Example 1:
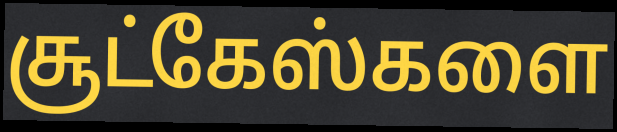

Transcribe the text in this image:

சூட்கேஸ்களை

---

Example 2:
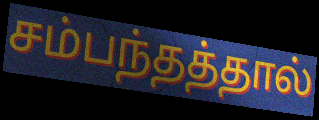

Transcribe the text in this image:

சம்பந்தத்தால்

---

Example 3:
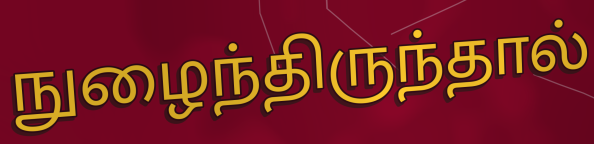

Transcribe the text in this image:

நுழைந்திருந்தால்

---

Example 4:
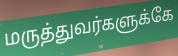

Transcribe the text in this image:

மருத்துவர்களுக்கே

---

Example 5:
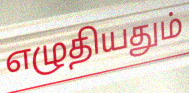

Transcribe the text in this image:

எழுதியதும்